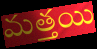
మత్తయి